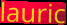
lauric